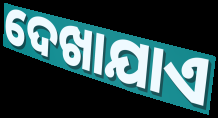
ଦେଖାଯାଏ